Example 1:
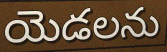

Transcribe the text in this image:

యెడలను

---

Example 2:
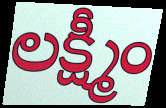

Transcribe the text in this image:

లక్ష్మీం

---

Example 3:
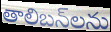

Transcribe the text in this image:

తాలిబన్‌లను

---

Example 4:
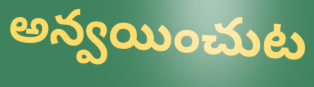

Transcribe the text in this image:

అన్వయించుట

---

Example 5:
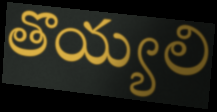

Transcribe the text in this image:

తొయ్యలి